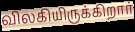
விலகியிருக்கிறார்